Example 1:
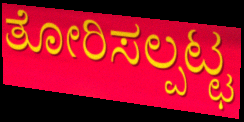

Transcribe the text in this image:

ತೋರಿಸಲ್ಪಟ್ಟ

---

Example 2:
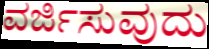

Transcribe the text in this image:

ವರ್ಜಿಸುವುದು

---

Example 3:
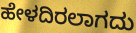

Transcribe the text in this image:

ಹೇಳದಿರಲಾಗದು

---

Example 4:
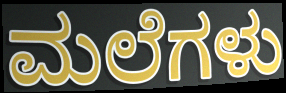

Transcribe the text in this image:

ಮಲೆಗಳು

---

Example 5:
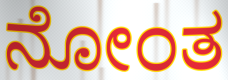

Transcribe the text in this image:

ನೋಂತ